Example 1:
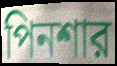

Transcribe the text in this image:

পিনশার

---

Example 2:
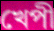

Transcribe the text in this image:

খেপী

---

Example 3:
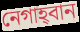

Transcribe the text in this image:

নেগাহ্‌বান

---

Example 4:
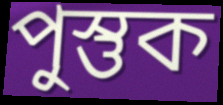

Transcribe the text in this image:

পুস্তুক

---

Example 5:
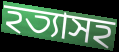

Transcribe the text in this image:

হত্যাসহ